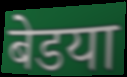
बेडया